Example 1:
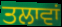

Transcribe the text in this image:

ਤਲਾਵਾਂ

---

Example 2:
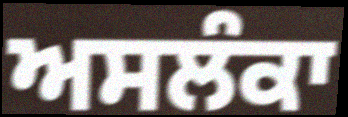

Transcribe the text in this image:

ਅਸਲੰਕਾ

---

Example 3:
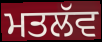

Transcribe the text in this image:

ਮਤਲੱਵ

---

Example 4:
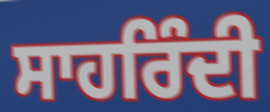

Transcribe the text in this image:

ਸਾਹਰਿੰਦੀ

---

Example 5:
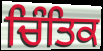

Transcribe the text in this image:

ਚਿੰਤਿਕ